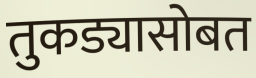
तुकड्यासोबत